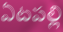
ఏటపల్లి